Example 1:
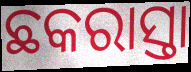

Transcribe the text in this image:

ଛକରାସ୍ତା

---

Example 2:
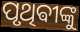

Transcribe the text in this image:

ପୃଥିଵୀଙ୍କୁ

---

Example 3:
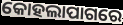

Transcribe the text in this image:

କୋହଲାପାଗରେ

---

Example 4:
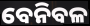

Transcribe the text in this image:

ବେନିବଳ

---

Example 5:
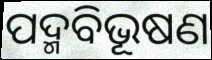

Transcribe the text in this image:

ପଦ୍ମବିଭୂଷଣ